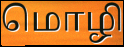
மொழி